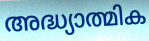
അദ്ധ്യാത്മിക